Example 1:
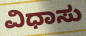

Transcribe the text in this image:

ವಿಧಾಸು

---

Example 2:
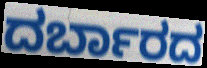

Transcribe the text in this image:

ದರ್ಬಾರದ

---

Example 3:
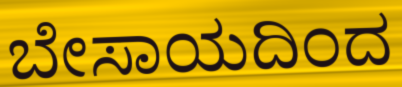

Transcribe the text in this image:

ಬೇಸಾಯದಿಂದ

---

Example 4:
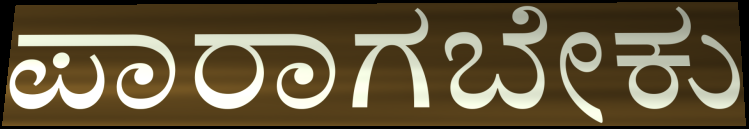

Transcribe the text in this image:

ಪಾರಾಗಬೇಕು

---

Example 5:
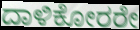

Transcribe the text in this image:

ದಾಳಿಕೋರರೇ